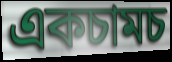
একচামচ